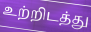
உற்றிடத்து